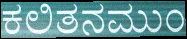
ಕಲಿತನಮುಂ